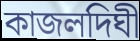
কাজলদিঘী